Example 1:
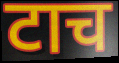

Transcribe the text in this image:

टाच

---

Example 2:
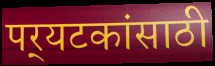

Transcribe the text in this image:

पर्यटकांसाठी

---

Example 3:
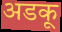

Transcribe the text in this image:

अडकू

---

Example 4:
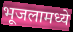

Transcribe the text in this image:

भूजलामध्ये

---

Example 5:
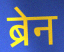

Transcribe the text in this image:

ब्रेन